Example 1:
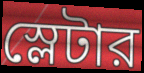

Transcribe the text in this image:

স্লেটার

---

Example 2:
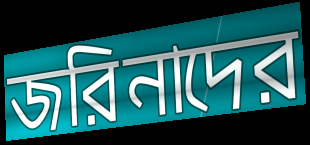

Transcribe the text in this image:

জরিনাদের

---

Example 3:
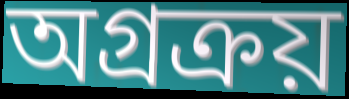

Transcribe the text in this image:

অগ্রক্রয়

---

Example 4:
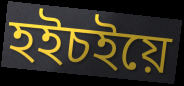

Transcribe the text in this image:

হইচইয়ে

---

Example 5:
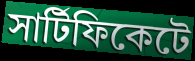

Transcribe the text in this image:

সার্টিফিকেটে